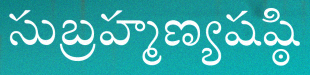
సుబ్రహ్మణ్యషష్ఠి